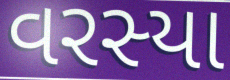
વરસ્યા